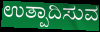
ಉತ್ಪಾದಿಸುವ